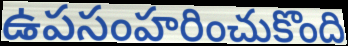
ఉపసంహరించుకొంది